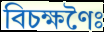
বিচক্ষণৈঃ